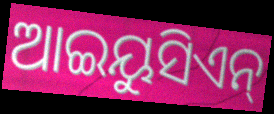
ଆଇୟୁସିଏନ୍